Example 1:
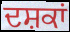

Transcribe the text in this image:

ਦਸ਼ਕਾਂ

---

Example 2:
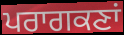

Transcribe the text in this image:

ਪਰਾਗਕਣਾਂ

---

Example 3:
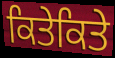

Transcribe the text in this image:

ਕਿਤੇਕਿਤੇ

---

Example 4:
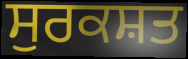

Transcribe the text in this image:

ਸੁਰਕਸ਼ਤ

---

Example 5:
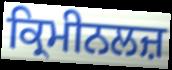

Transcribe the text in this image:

ਕ੍ਰਿਮੀਨਲਜ਼